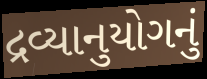
દ્રવ્યાનુયોગનું